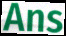
Ans